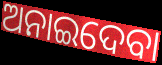
ଅନାଇଦେବା